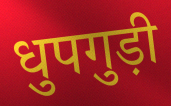
धुपगुड़ी